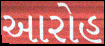
આરોહ